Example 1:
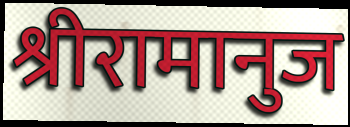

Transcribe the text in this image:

श्रीरामानुज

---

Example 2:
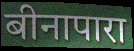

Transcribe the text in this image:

बीनापारा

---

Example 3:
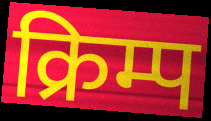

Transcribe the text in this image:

क्रिम्प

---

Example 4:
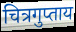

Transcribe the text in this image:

चित्रगुप्ताय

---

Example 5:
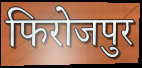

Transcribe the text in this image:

फिरोजपुर